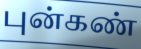
புன்கண்